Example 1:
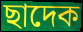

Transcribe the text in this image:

ছাদেক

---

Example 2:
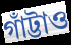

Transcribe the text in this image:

গাঁট্টাও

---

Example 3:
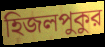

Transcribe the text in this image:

হিজলপুকুর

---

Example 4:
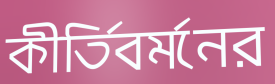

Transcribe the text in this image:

কীর্তিবর্মনের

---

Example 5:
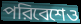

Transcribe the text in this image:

পরিবেশেও